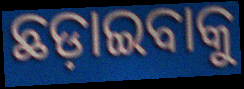
ଛଡ଼ାଇବାକୁ